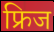
फ्रिज